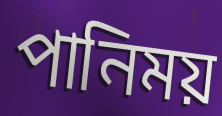
পানিময়